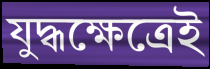
যুদ্ধক্ষেত্রেই